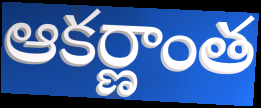
ఆకర్ణాంత